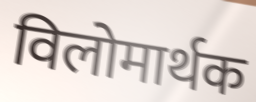
विलोमार्थक